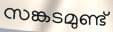
സങ്കടമുണ്ട്